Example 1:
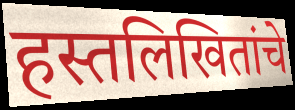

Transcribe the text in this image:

हस्तलिखितांचे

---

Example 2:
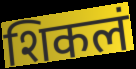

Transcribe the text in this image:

शिकलं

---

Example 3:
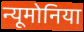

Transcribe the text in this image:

न्यूमोनिया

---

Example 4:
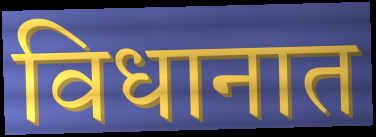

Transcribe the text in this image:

विधानात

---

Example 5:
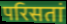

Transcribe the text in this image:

परिसतां